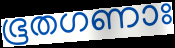
ഭൂതഗണാഃ